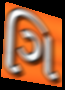
ગિ